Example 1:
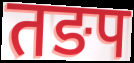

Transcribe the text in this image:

तङप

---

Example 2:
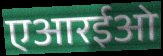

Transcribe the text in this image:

एआरईओ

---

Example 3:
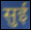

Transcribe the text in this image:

सुई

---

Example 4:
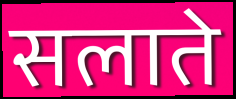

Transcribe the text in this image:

सलाते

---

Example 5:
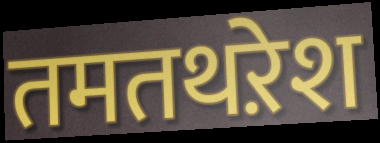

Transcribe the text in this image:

तमतथऱेश